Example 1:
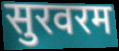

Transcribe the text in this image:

सुरवरम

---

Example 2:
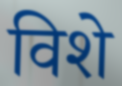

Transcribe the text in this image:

विशे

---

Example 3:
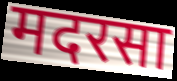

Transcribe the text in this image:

मदरसा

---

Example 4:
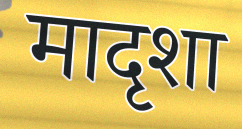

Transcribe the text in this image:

मादृशा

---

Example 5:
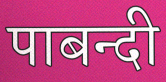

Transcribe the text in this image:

पाबन्दी